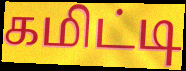
கமிட்டி